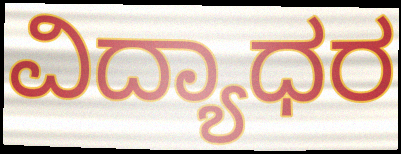
ವಿದ್ಯಾಧರ